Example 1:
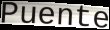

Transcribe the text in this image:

Puente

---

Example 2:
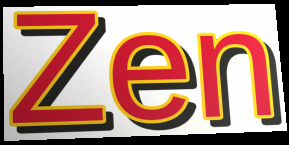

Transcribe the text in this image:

Zen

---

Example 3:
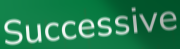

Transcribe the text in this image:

Successive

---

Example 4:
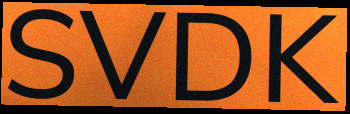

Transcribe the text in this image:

SVDK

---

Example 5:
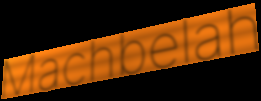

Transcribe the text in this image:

Machbelah